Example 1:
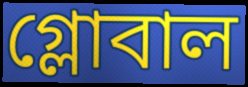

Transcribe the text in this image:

গ্লোবাল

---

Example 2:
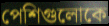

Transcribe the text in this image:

পেশিগুলোকে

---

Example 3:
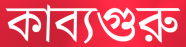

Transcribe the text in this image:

কাব্যগুরু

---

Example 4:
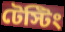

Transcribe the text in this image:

টেস্টিং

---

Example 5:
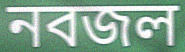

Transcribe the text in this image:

নবজল